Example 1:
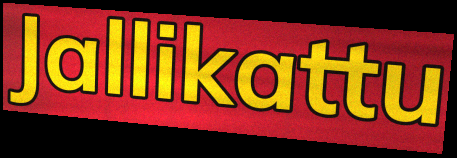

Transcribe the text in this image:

Jallikattu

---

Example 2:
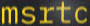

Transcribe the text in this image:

msrtc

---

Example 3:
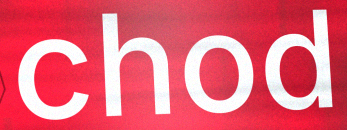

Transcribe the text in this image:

chod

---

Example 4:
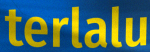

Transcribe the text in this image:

terlalu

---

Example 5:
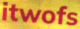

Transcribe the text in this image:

itwofs